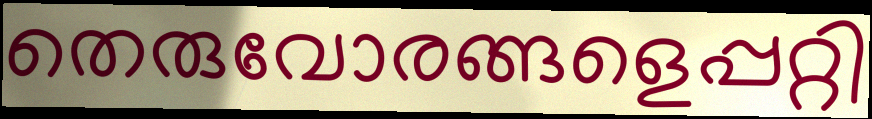
തെരുവോരങ്ങളെപ്പറ്റി